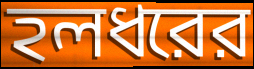
হলধরের